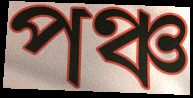
পঞ্চ